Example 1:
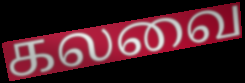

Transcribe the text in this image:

கலவை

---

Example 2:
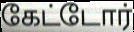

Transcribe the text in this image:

கேட்டோர்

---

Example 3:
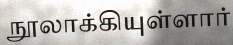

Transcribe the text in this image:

நூலாக்கியுள்ளார்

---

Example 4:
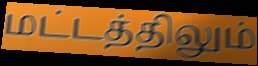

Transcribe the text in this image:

மட்டத்திலும்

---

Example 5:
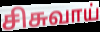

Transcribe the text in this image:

சிசுவாய்